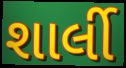
શાર્લી